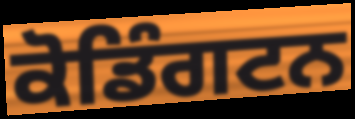
ਕੋਡਿੰਗਟਨ